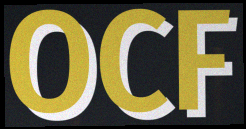
OCF